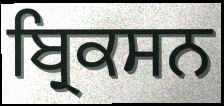
ਬ੍ਰਿਕਸਨ